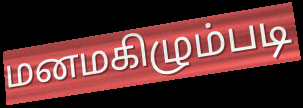
மனமகிழும்படி